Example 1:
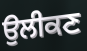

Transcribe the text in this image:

ਉਲੀਕਣ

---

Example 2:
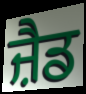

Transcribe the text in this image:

ਜ਼ੈਡ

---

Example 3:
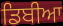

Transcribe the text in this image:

ਡਿਬੀਆ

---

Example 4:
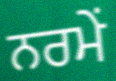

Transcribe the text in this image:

ਨਰਮੇਂ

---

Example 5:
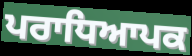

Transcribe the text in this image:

ਪਰਾਧਿਆਪਕ